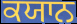
ਕਯਾਨ